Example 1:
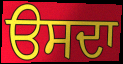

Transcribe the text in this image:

ੳਸਦਾ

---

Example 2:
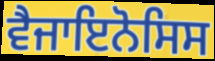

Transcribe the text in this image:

ਵੈਜਾਇਨੋਸਿਸ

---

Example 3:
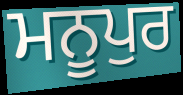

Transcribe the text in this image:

ਮਨੂਪੁਰ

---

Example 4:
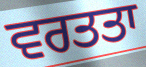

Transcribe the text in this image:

ਵਰਤਤਾ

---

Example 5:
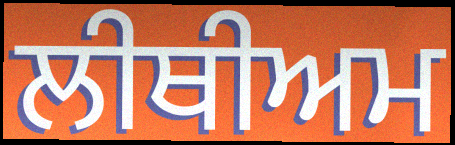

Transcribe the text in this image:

ਲੀਥੀਅਮ